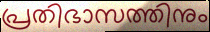
പ്രതിഭാസത്തിനും